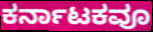
ಕರ್ನಾಟಕವೂ